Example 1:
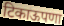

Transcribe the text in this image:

टिकाऊपणा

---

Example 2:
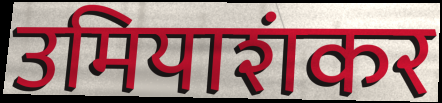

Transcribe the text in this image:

उमियाशंकर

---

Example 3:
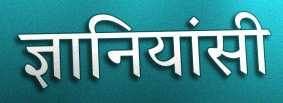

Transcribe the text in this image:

ज्ञानियांसी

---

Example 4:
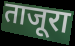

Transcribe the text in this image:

ताजूरा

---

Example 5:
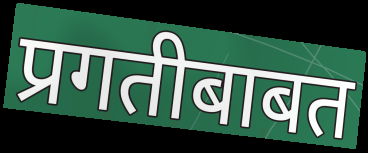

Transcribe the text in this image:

प्रगतीबाबत